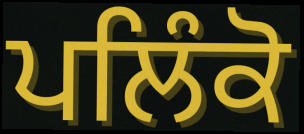
ਪਲਿੰਕੋ